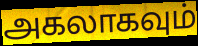
அகலாகவும்